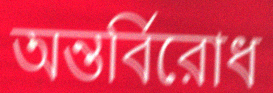
অন্তর্বিরোধ